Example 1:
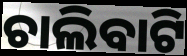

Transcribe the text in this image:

ଚାଲିବାଟି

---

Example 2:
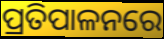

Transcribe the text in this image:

ପ୍ରତିପାଳନରେ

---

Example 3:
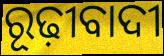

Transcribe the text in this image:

ରୂଢ଼ୀବାଦୀ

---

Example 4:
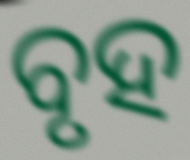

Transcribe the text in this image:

ବୃହ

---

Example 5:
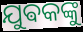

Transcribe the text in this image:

ଯୁଵକଙ୍କୁ